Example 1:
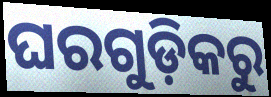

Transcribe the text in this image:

ଘରଗୁଡ଼ିକରୁ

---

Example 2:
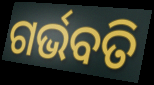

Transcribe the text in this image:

ଗର୍ଭବତି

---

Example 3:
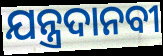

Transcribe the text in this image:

ଯନ୍ତ୍ରଦାନବୀ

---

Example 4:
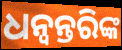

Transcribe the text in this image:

ଧନ୍ୱନ୍ତରିଙ୍କ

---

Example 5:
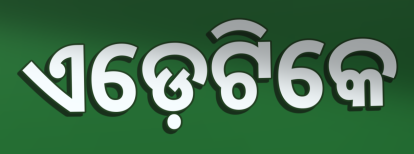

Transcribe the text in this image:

ଏଡ଼େଟିକେ